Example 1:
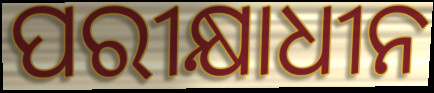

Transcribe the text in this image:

ପରୀକ୍ଷାଧୀନ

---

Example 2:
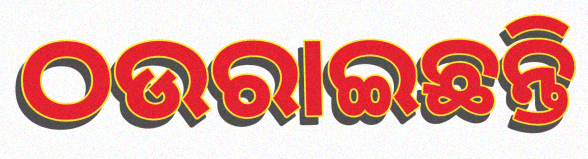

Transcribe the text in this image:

ଠଉରାଇଛନ୍ତି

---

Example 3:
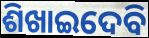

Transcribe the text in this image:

ଶିଖାଇଦେବି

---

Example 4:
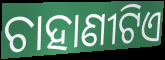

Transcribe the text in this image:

ଚାହାଣୀଟିଏ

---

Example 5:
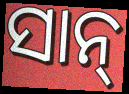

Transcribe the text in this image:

ସାନ୍